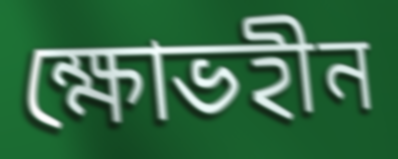
ক্ষোভহীন